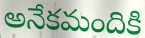
అనేకమందికి